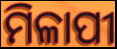
ମିଳାପୀ